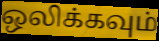
ஒலிக்கவும்